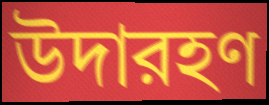
উদারহণ